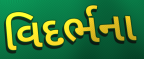
વિદર્ભના